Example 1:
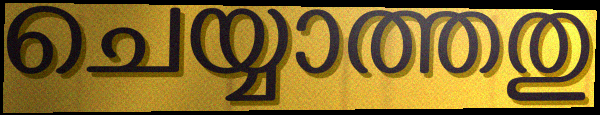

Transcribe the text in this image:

ചെയ്യാത്തതു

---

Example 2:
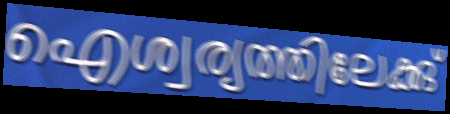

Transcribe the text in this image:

ഐശ്വര്യത്തിലേക്കു്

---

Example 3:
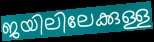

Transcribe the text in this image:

ജയിലിലേക്കുള്ള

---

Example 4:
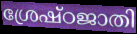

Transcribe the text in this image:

ശ്രേഷ്ഠജാതി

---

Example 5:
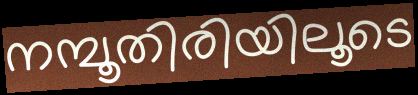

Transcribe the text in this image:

നമ്പൂതിരിയിലൂടെ